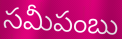
సమీపంబు